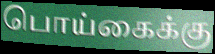
பொய்கைக்கு